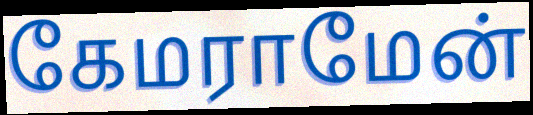
கேமராமேன்